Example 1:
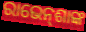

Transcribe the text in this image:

ରାଭେନ୍‌ଶାଙ୍କ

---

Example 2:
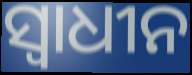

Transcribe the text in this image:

ସ୍ଵାଧୀନ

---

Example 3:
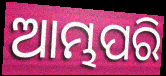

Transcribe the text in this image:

ଆମ୍ଭପରି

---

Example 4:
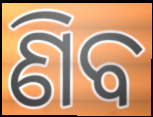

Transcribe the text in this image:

ଣିବ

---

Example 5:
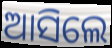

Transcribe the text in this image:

ଆସିଲେ